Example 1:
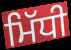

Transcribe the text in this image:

ਮਿੱਧੀ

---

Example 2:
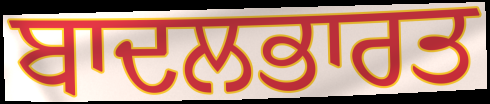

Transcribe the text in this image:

ਬਾਦਲਭਾਰਤ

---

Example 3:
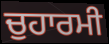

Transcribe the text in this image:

ਚੁਹਾਰਮੀ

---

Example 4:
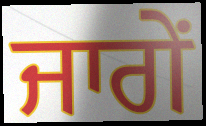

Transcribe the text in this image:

ਜਾਗੇਂ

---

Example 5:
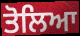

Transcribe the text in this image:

ਤੋਲਿਆ